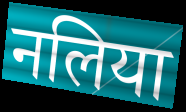
नलिया